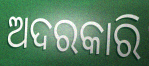
ଅଦରକାରି